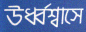
উর্ধ্বশ্বাসে